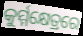
କୁର୍ମ୍ମକ୍ଷେତ୍ରରେ